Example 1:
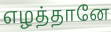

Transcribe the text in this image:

எழத்தானே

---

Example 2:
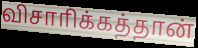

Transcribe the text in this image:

விசாரிக்கத்தான்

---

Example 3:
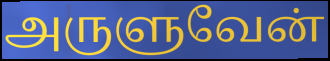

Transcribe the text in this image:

அருளுவேன்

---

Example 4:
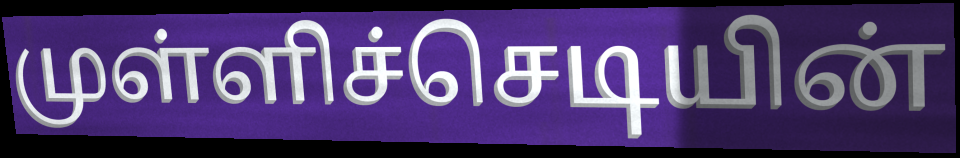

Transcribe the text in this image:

முள்ளிச்செடியின்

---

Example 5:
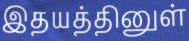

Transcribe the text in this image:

இதயத்தினுள்